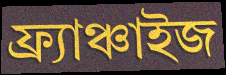
ফ্র্যাঞ্চাইজ